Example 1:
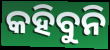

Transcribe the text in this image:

କହିବୁନି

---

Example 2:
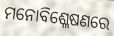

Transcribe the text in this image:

ମନୋବିଶ୍ଳେଷଣରେ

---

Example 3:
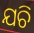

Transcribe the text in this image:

ଯଚି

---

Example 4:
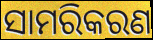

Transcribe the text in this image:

ସାମରିକରଣ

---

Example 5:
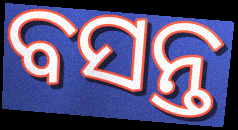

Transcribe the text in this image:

ବସନ୍ତ